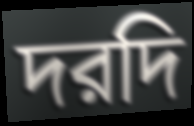
দরদি